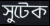
সুটেক